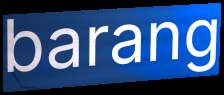
barang